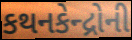
કથનકેન્દ્રોની